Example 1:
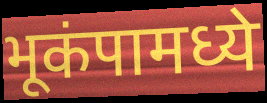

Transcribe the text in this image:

भूकंपामध्ये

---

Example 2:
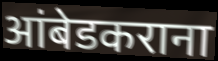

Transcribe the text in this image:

आंबेडकराना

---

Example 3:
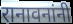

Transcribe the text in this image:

रानावनांनी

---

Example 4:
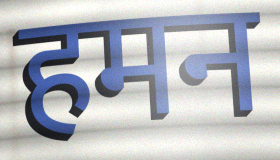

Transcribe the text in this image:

हमन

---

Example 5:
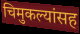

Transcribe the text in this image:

चिमुकल्यांसह